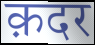
क़दर